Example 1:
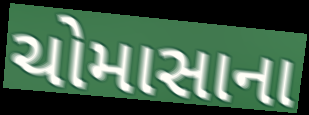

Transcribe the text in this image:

ચોમાસાના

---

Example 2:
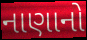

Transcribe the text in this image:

નાણાનો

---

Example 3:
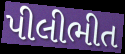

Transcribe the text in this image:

પીલીભીત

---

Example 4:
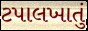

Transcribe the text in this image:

ટપાલખાતું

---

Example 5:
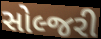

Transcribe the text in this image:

સોલ્જરી